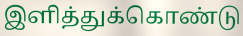
இளித்துக்கொண்டு